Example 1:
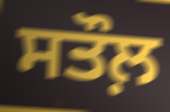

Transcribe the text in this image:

ਸਤੌਲ਼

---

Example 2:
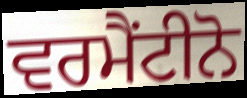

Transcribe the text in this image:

ਵਰਮੈਂਟੀਨੋ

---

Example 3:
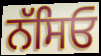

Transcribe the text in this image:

ਨੱਸਿਓ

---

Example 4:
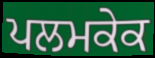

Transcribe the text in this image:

ਪਲਮਕੇਕ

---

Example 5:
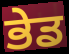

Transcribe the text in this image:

ਭੇਡ